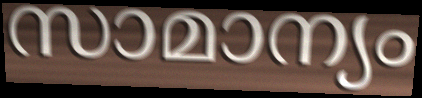
സാമാന്യം